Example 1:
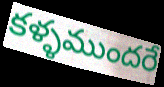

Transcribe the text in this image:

కళ్ళముందరే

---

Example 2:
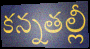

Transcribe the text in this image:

కన్నతల్లీ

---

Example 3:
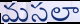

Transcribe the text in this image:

మసలా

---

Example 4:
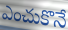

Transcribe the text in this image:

ఎంచుకొనే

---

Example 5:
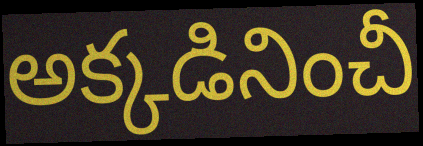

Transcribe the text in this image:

అక్కడినించీ